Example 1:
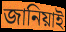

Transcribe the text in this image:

জানিয়াই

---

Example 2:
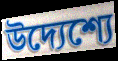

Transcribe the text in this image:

উদ্যেশ্যে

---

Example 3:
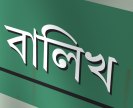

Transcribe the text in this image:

বালিখ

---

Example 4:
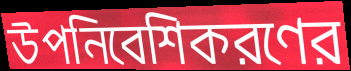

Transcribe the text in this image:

উপনিবেশিকরণের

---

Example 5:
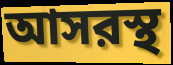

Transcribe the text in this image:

আসরস্থ